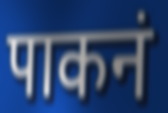
पाकनं